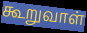
கூறுவாள்